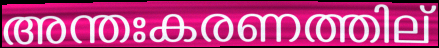
അന്തഃകരണത്തില്